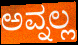
ಅವ್ನಲ್ಲ